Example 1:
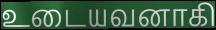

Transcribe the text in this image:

உடையவனாகி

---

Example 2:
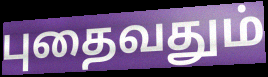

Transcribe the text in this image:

புதைவதும்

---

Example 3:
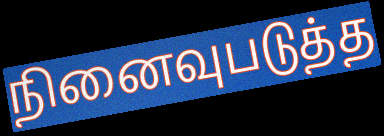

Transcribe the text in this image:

நினைவுபடுத்த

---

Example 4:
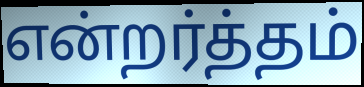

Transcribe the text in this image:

என்றர்த்தம்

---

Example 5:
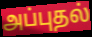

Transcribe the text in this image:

அப்புதல்